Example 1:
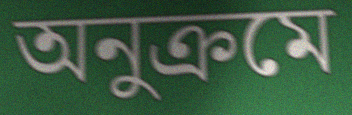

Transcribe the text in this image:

অনুক্ৰমে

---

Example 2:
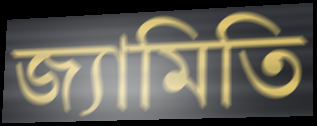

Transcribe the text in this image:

জ্যামিতি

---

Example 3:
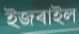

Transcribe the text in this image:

ইজৰাইল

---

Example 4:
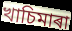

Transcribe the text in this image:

খাচিমাৰা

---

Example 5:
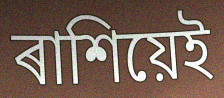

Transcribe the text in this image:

ৰাশিয়েই